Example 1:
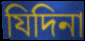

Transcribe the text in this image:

যিদিনা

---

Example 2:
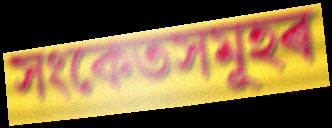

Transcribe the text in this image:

সংকেতসমূহৰ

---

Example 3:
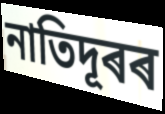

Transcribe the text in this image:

নাতিদূৰৰ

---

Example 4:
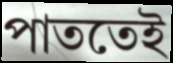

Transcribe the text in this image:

পাততেই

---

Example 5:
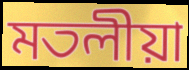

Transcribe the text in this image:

মতলীয়া